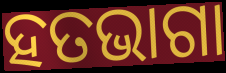
ହତଭାଗା